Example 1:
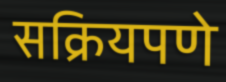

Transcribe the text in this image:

सक्रियपणे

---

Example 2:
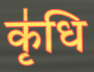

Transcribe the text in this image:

कृ॑धि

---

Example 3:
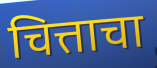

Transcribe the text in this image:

चित्ताचा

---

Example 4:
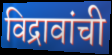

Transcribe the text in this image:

विद्रावांची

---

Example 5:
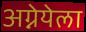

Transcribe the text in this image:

अग्नेयेला